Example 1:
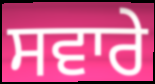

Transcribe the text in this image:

ਸਵਾਰੇ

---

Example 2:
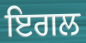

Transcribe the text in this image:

ਇਗਲ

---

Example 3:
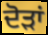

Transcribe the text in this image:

ਦੋੜਾਂ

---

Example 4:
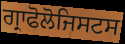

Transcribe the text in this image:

ਗ੍ਰਾਫੋਲੋਜਿਸਟਸ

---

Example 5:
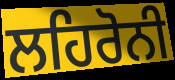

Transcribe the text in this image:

ਲਹਿਰੋਨੀ